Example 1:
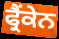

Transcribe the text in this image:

ਫ੍ਰੈਂਕੇਨ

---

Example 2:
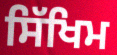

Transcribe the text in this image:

ਸਿੱਖਿਮ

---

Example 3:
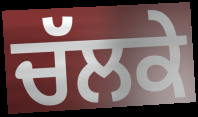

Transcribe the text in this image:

ਚੱਲਕੇ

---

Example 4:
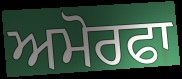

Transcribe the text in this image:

ਅਮੋਰਫਾ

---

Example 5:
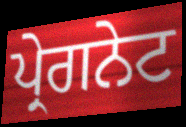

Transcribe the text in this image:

ਪ੍ਰੇਗਨੇਟ